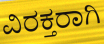
ವಿರಕ್ತರಾಗಿ